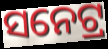
ସନେଟ୍ର